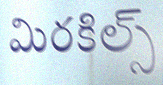
మిరకిల్స్